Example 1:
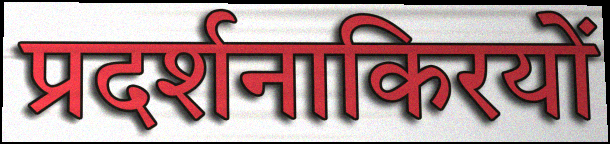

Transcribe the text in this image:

प्रदर्शनाकिरयों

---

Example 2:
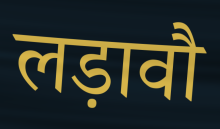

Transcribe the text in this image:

लड़ावौ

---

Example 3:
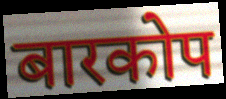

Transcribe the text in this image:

बारकोप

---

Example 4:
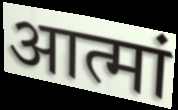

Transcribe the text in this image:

आत्मां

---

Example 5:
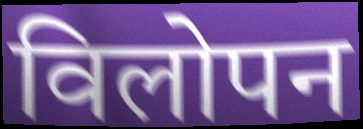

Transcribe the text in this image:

विलोपन